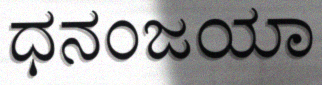
ಧನಂಜಯಾ